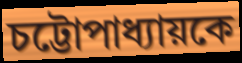
চট্টোপাধ্যায়কে